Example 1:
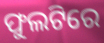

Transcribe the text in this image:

ଫୁଲଟିରେ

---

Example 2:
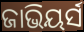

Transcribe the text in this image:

ଜାଭିୟର୍ସ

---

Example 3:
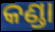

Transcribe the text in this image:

କଣ୍ଡା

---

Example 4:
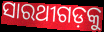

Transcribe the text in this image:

ସାରଥୀଗଡ଼କୁ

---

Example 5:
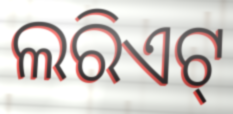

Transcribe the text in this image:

ଲରିଏଟ୍